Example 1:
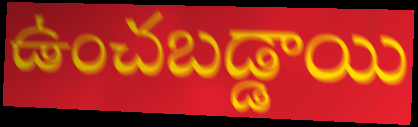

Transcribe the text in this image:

ఉంచబడ్డాయి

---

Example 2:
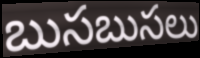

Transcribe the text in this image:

బుసబుసలు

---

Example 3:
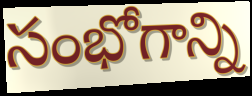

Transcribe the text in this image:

సంభోగాన్ని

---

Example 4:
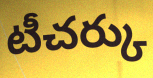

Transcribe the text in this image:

టీచర్కు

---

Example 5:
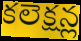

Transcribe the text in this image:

కలెక్షన్ల